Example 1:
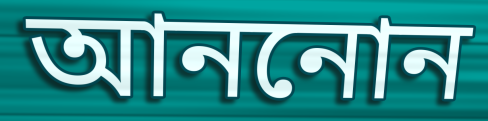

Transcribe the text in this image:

আননোন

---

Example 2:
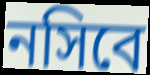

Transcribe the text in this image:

নসিবে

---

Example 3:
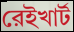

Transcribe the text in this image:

রেইখার্ট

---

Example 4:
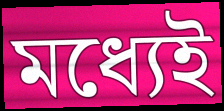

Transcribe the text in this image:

মধ্যেই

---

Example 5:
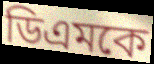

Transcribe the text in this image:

ডিএমকে